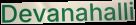
Devanahalli